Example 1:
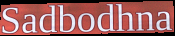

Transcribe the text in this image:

Sadbodhna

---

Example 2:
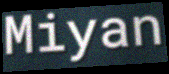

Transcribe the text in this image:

Miyan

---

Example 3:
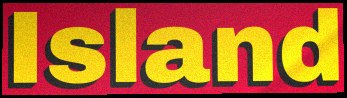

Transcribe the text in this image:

Island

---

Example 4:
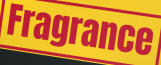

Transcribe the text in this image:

Fragrance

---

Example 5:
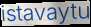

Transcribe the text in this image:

istavaytu